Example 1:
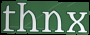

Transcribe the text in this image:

thnx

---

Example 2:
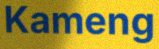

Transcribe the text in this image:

Kameng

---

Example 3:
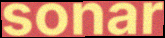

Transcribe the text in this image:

sonar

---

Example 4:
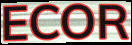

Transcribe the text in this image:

ECOR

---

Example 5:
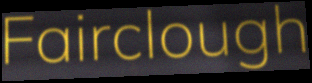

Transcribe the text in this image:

Fairclough